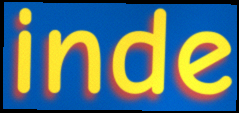
inde